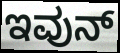
ಇವುನ್